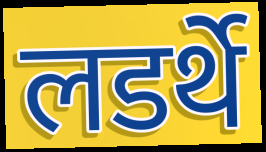
लडर्थे